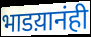
भाडय़ानंही